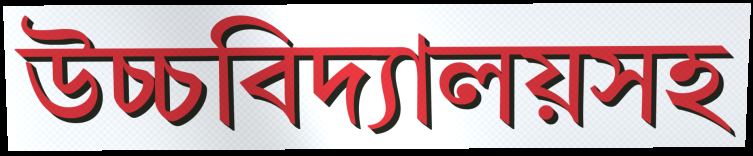
উচ্চবিদ্যালয়সহ